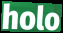
holo